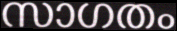
സാഗതം